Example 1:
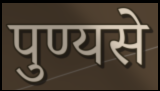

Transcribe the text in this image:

पुण्यसे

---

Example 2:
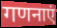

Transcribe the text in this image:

गणनाएं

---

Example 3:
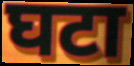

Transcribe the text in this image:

घटा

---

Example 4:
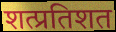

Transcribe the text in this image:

शत्प्रतिशत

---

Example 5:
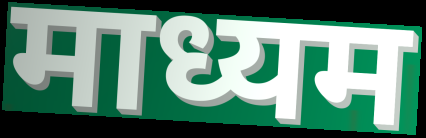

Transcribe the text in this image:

माध्यम